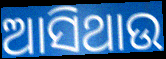
ଆସିଥାଉ